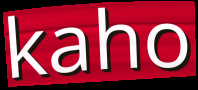
kaho